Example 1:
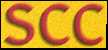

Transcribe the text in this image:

SCC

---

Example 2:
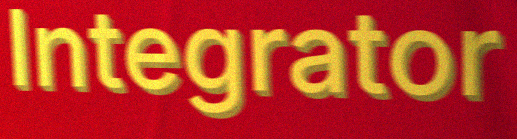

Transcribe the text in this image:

Integrator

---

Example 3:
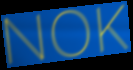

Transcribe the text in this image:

NOK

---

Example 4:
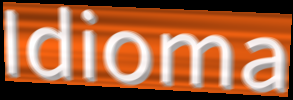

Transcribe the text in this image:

Idioma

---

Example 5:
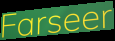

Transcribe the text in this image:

Farseer